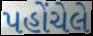
પહોંચેલે